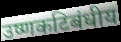
उष्णकटिबंधीय